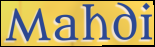
Mahdi